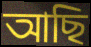
আছি